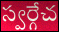
స్వర్గేచ